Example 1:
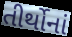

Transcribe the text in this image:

તીર્થોનાં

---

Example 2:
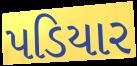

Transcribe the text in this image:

પડિયાર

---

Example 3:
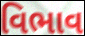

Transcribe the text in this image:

વિભાવ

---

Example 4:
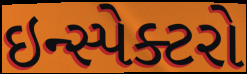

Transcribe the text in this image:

ઇન્સ્પેક્ટરો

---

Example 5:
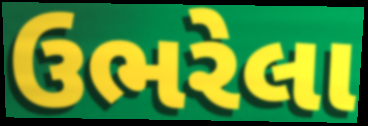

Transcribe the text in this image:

ઉભરેલા